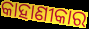
କାହାଣୀକାର